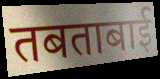
तबताबाई